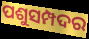
ପଶୁସମ୍ପଦର